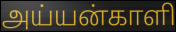
அய்யன்காளி